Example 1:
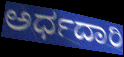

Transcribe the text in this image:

ಅರ್ಧದಾರಿ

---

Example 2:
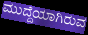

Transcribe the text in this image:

ಮುದ್ದೆಯಾಗಿರುವ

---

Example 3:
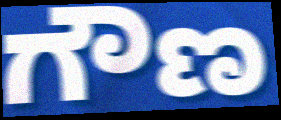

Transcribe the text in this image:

ಗೌಣ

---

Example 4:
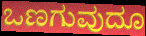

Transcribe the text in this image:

ಒಣಗುವುದೂ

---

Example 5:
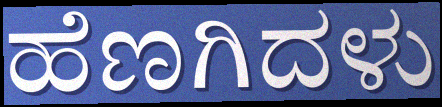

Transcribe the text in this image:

ಹೆಣಗಿದಳು